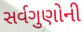
સર્વગુણોની